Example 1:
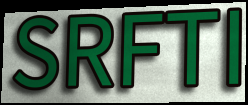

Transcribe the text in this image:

SRFTI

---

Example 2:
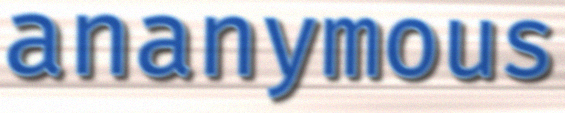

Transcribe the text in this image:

ananymous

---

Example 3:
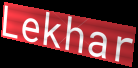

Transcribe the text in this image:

Lekhar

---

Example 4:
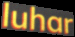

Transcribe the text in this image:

luhar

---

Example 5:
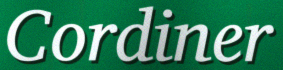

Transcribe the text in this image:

Cordiner